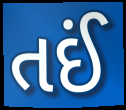
તઈં